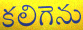
కలిగెను